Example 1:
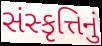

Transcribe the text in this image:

સંસ્કૃત્તિનું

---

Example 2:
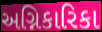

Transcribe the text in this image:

અગ્નિકારિકા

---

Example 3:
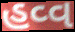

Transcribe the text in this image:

હવ્વ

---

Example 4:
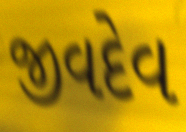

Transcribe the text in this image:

જીવદેવ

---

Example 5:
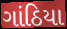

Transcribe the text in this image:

ગાંઠિયા